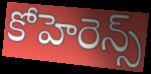
కోహెరెన్స్